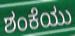
ಶಂಕೆಯು